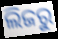
ଲିଜରୁ